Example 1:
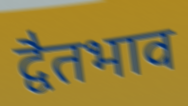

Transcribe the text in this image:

द्वैतभाव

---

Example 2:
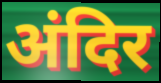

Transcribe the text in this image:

अंदिर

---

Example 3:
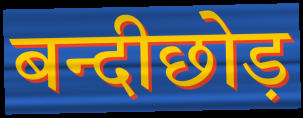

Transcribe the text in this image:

बन्दीछोड़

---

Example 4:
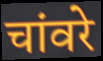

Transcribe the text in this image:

चांवरे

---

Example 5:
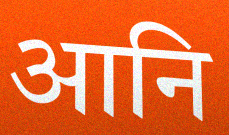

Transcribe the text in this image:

आनि